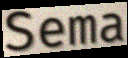
Sema